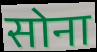
सोना